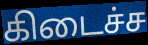
கிடைச்ச